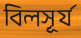
বিলসূর্য